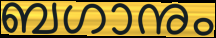
ബഗാനും